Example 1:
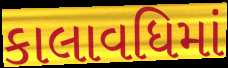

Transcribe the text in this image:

કાલાવધિમાં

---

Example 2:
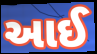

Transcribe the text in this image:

આઈ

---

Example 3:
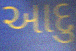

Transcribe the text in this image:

આદુ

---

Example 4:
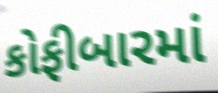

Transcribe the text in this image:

કોફીબારમાં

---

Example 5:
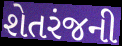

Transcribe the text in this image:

શેતરંજની